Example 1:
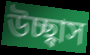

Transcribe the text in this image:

উচ্ছ্বাস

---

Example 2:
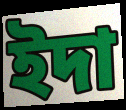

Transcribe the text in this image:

ইদা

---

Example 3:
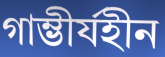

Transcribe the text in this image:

গাম্ভীর্যহীন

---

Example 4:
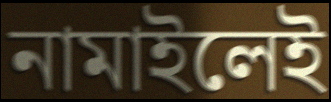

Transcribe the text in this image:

নামাইলেই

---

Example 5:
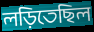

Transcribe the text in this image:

লড়িতেছিল